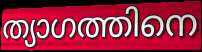
ത്യാഗത്തിനെ